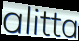
alitta